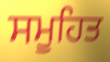
ਸਮੂਹਿਤ